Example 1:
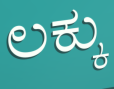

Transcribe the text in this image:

ಲಕ್ಕು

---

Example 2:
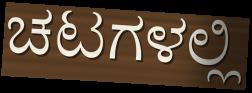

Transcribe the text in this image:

ಚಟಗಳಲ್ಲಿ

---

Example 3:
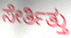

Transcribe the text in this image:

ಸೇರ್ತಿತ್ತು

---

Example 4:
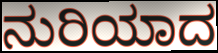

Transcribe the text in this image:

ನುರಿಯಾದ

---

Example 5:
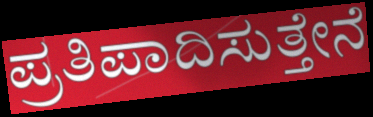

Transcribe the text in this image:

ಪ್ರತಿಪಾದಿಸುತ್ತೇನೆ